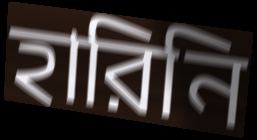
হারিনি